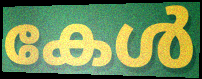
കേൾ